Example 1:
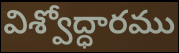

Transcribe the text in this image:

విశ్వోద్ధారము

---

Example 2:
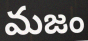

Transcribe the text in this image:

మజం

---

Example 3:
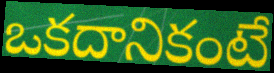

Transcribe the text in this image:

ఒకదానికంటే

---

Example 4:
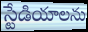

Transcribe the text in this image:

స్టేడియాలను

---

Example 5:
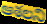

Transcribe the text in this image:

ఆశలని